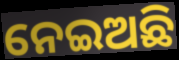
ନେଇଅଛି